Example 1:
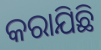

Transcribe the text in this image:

କରାଯିଛି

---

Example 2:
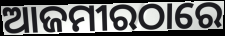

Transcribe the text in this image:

ଆଜମୀରଠାରେ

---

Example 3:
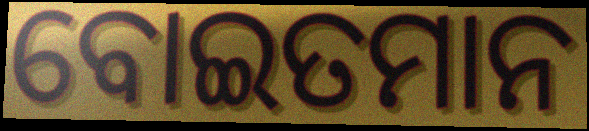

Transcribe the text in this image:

ବୋଇତମାନ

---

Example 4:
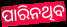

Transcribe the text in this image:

ପାରିନଥିବ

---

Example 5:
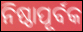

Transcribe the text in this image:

ନିଷ୍ଠାପୂର୍ବକ